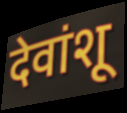
देवांशू